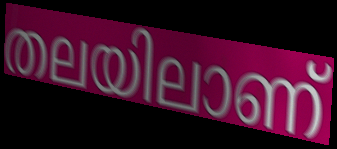
തലയിലാണ്